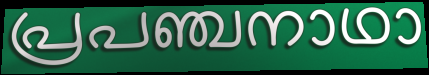
പ്രപഞ്ചനാഥാ